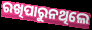
ରଖିପାରୁନଥିଲେ